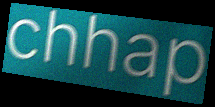
chhap